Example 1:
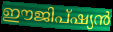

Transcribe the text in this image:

ഈജിപ്ഷ്യൻ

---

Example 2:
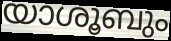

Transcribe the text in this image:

യാശൂബും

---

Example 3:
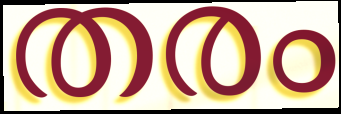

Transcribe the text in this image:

തരം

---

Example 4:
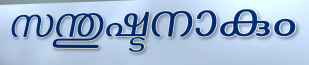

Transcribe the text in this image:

സന്തുഷ്ടനാകും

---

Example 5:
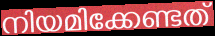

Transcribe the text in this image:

നിയമിക്കേണ്ടത്